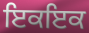
ਇਕਇਕ